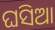
ଘସିଆ